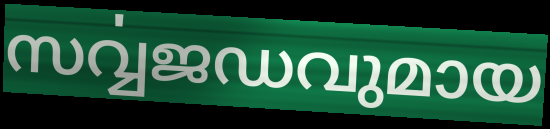
സൎവ്വജഡവുമായ